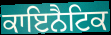
ਕਾਇਨੈਟਿਕ